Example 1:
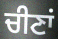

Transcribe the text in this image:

ਚੀਣਾਂ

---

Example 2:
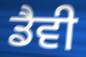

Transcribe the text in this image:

ਡੈਵੀ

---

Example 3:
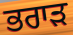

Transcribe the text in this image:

ਭਰਾੜ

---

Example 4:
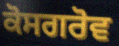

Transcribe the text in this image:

ਕੋਸਗਰੋਵ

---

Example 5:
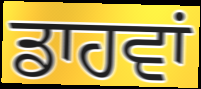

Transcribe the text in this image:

ਡਾਹਵਾਂ